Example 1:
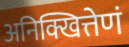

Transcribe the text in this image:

अनिक्खित्तेणं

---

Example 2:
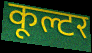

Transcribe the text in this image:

कूल्‍टर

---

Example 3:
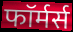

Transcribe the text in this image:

फॉर्मर्स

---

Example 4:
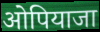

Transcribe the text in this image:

ओपियाजा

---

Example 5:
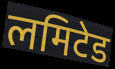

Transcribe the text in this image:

लमिटेड